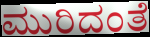
ಮುರಿದಂತೆ